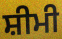
ਸ਼ੀਮੀ